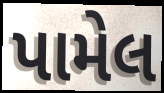
પામેલ